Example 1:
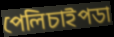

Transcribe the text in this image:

পেলিচাইপডা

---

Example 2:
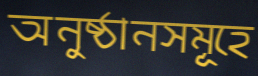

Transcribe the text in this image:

অনুষ্ঠানসমূহে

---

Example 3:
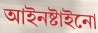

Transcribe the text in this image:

আইনষ্টাইনো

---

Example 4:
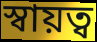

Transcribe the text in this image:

স্বায়ত্ব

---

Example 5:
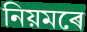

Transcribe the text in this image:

নিয়মৰে